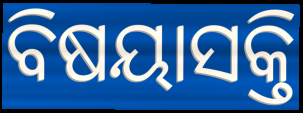
ବିଷୟାସକ୍ତି